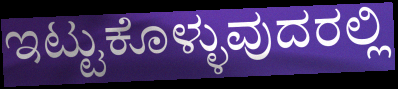
ಇಟ್ಟುಕೊಳ್ಳುವುದರಲ್ಲಿ